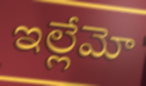
ఇల్లేమో